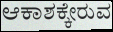
ಆಕಾಶಕ್ಕೇರುವ